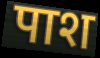
पाश